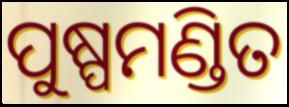
ପୁଷ୍ପମଣ୍ଡିତ